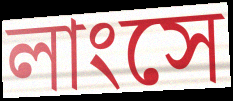
লাংসে